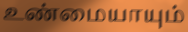
உண்மையாயும்